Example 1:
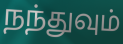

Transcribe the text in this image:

நந்துவும்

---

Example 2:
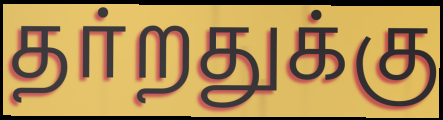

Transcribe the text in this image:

தர்றதுக்கு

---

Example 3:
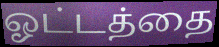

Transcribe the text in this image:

ஓட்டத்தை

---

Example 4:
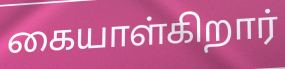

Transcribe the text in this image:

கையாள்கிறார்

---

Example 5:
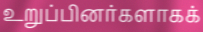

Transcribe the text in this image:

உறுப்பினர்களாகக்